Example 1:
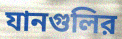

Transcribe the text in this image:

যানগুলির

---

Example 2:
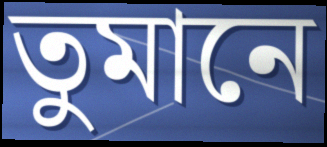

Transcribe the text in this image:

তুমানে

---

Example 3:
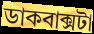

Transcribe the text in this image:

ডাকবাক্সটা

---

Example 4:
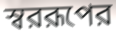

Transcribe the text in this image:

স্বররূপের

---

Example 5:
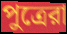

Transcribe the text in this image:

পুত্রেরা